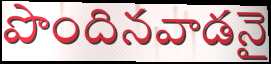
పొందినవాడనై